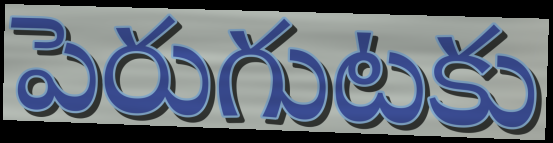
పెరుగుటకు